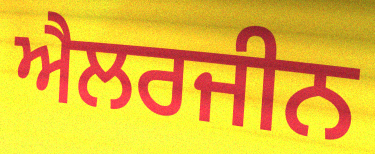
ਐਲਰਜੀਨ